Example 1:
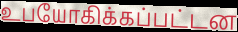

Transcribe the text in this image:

உபயோகிக்கப்பட்டன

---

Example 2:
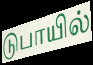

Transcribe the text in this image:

டுபாயில்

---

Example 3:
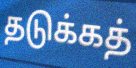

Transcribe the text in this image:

தடுக்கத்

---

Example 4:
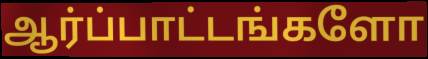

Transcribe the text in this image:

ஆர்ப்பாட்டங்களோ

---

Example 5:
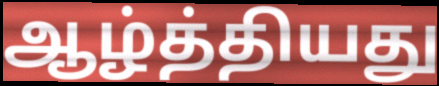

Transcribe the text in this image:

ஆழ்த்தியது